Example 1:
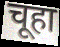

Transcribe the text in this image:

चूहा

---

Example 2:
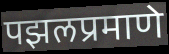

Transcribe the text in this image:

पझलप्रमाणे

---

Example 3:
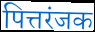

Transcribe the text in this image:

पित्तरंजक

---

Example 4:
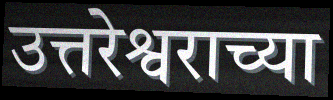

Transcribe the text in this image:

उत्तरेश्वराच्या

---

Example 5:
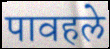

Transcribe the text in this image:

पावहले